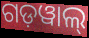
ଗଡ଼ୱାଲ୍